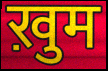
ख़ुम